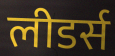
लीडर्स